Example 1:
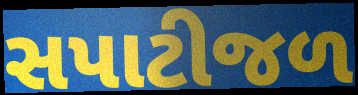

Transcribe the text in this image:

સપાટીજળ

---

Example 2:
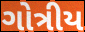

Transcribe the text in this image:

ગોત્રીય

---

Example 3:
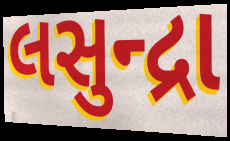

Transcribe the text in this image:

લસુન્દ્રા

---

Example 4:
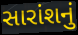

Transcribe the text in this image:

સારાંશનું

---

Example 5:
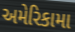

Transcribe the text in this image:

અમેરિકામા